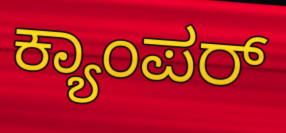
ಕ್ಯಾಂಪರ್